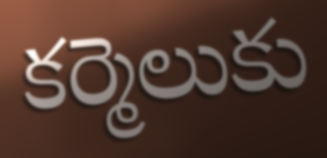
కర్మెలుకు